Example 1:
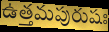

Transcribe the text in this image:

ఉత్తమపురుషః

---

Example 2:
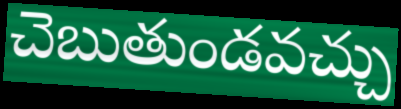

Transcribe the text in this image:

చెబుతుండవచ్చు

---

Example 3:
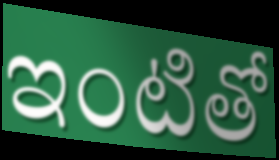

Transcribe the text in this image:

ఇంటితో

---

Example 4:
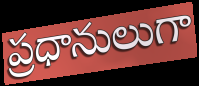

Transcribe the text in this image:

ప్రధానులుగా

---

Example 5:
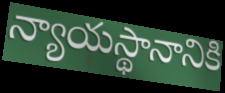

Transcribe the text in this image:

న్యాయస్థానానికి